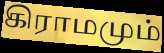
கிராமமும்